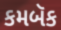
કમબૅક